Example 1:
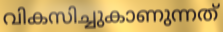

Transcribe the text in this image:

വികസിച്ചുകാണുന്നത്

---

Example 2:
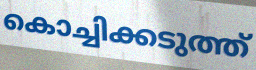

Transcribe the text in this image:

കൊച്ചിക്കടുത്ത്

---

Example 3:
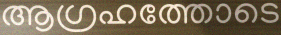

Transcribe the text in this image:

ആഗ്രഹത്തോടെ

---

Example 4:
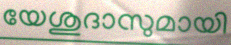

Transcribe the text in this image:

യേശുദാസുമായി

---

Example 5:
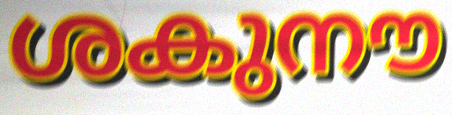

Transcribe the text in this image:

ശകുനൗ